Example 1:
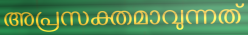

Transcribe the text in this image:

അപ്രസക്തമാവുന്നത്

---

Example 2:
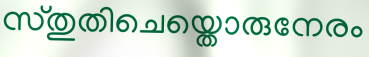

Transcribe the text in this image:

സ്തുതിചെയ്തൊരുനേരം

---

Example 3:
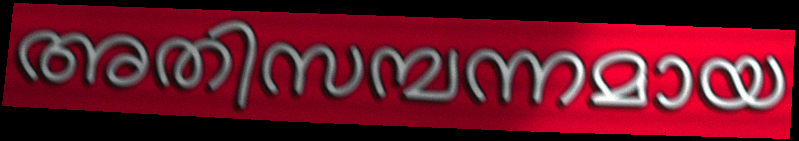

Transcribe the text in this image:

അതിസമ്പന്നമായ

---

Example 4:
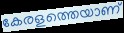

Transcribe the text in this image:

കേരളത്തെയാണ്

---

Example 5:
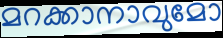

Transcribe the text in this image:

മറക്കാനാവുമോ